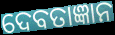
ଦେବତାଜ୍ଞାନ